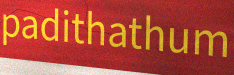
padithathum